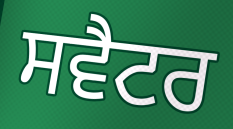
ਸਵੈਟਰ